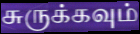
சுருக்கவும்